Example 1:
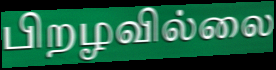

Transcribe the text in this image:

பிறழவில்லை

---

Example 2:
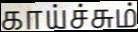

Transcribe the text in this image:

காய்ச்சும்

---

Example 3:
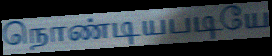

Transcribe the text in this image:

நொண்டியபடியே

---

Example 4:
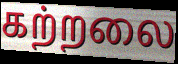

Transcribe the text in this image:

கற்றலை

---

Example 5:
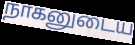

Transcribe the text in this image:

நாகனுடைய